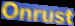
Onrust